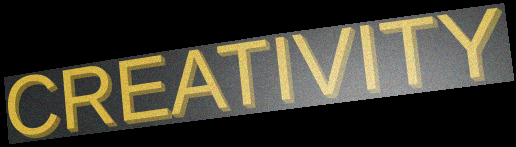
CREATIVITY